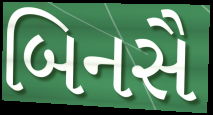
બિનસૈ